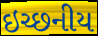
ઇચ્છનીય